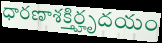
ధారణాశక్తిర్హృదయం